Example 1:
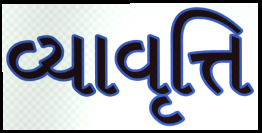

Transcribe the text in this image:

વ્યાવૃત્તિ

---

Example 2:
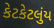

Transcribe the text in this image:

કેટકેટલુંય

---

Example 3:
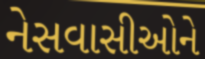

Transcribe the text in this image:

નેસવાસીઓને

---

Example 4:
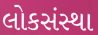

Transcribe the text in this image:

લોકસંસ્થા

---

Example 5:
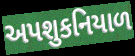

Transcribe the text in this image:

અપશુકનિયાળ